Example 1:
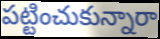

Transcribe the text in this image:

పట్టించుకున్నారా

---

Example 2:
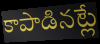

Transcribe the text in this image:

కాపాడినట్లే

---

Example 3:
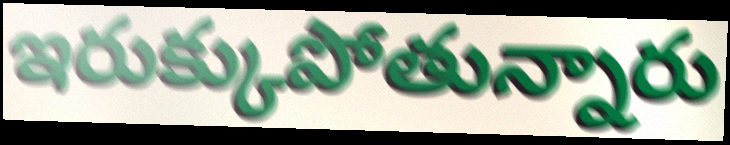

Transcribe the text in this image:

ఇరుక్కుపోతున్నారు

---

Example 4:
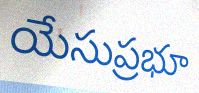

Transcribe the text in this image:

యేసుప్రభూ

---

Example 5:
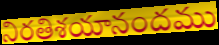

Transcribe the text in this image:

నిరతిశయానందము